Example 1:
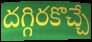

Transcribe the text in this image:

దగ్గిరకొచ్చే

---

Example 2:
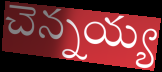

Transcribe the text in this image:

చెన్నయ్య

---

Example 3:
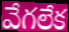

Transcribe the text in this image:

వేగలేక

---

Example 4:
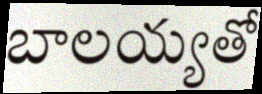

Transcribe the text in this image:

బాలయ్యతో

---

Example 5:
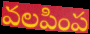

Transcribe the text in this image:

వలపింప